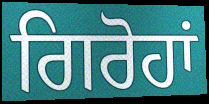
ਗਿਰੋਹਾਂ